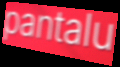
pantalu